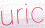
uric